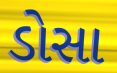
ડોસા